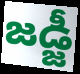
జడ్జీ